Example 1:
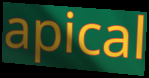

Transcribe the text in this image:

apical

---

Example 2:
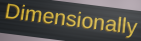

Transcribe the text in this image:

Dimensionally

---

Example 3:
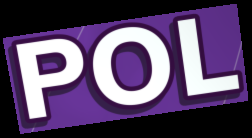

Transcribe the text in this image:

POL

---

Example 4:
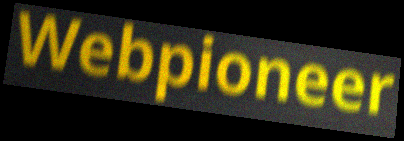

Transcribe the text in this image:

Webpioneer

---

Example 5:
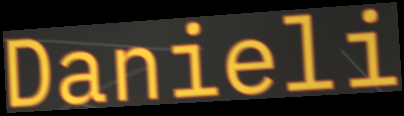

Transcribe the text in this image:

Danieli